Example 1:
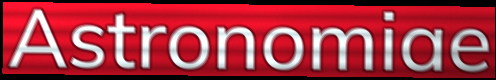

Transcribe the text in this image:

Astronomiae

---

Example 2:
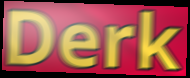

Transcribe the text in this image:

Derk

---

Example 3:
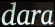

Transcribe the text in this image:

dara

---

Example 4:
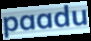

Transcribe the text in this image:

paadu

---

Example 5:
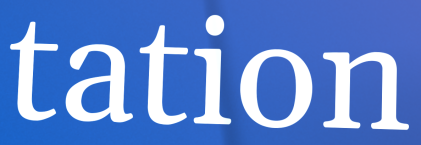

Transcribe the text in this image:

tation